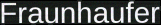
Fraunhaufer